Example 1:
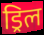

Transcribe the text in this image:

ड्रिल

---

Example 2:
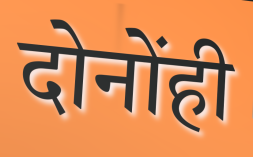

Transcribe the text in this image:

दोनोंही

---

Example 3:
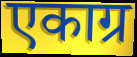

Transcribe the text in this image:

एकाग्र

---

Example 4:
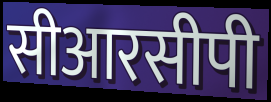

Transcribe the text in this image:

सीआरसीपी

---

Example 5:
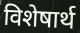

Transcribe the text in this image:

विशेषार्थ